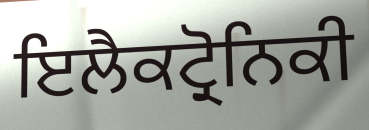
ਇਲੈਕਟ੍ਰੋਨਿਕੀ